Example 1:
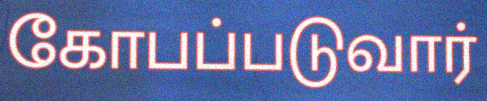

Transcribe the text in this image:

கோபப்படுவார்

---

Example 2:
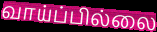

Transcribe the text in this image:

வாய்ப்பில்லை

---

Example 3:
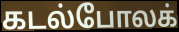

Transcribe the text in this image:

கடல்போலக்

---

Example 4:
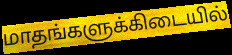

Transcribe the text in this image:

மாதங்களுக்கிடையில்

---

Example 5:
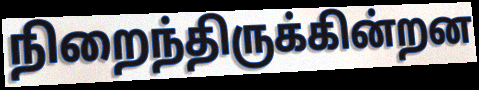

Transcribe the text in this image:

நிறைந்திருக்கின்றன